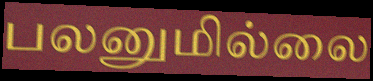
பலனுமில்லை